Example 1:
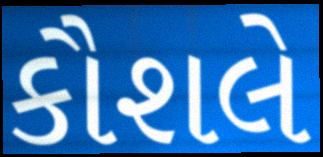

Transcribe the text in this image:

કૌશલે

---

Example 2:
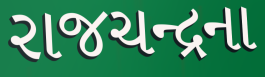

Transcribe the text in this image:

રાજચન્દ્રના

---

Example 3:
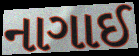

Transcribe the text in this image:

નાગાઈ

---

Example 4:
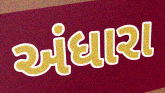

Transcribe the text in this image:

અંધારા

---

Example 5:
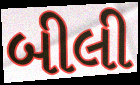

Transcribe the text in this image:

બીલી